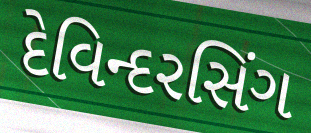
દેવિન્દરસિંગ